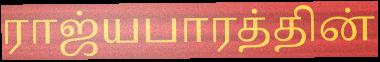
ராஜ்யபாரத்தின்